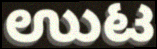
ಉುಟ